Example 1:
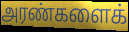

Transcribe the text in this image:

அரண்களைக்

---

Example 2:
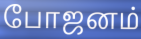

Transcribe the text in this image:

போஜனம்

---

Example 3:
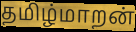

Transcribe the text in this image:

தமிழ்மாறன்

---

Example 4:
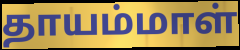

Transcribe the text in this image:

தாயம்மாள்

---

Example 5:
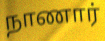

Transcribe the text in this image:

நாணார்